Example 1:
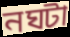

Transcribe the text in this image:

নঘটা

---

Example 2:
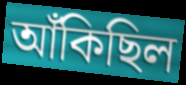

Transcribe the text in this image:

আঁকিছিল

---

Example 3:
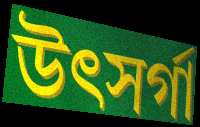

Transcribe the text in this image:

উৎসৰ্গা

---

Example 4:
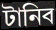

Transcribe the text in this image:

টানিব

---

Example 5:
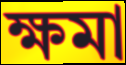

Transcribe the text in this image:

ক্ষমা